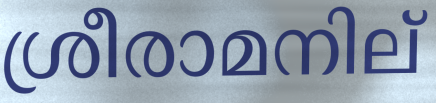
ശ്രീരാമനില്